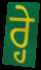
ਰ੍ਹੇ